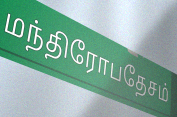
மந்திரோபதேசம்